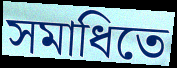
সমাধিতে